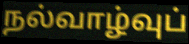
நல்வாழ்வுப்